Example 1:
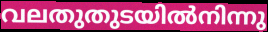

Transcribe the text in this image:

വലതുതുടയിൽനിന്നു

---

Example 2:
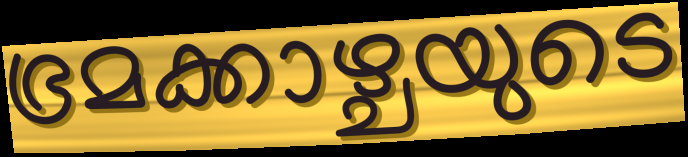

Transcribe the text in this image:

ഭ്രമക്കാഴ്ചയുടെ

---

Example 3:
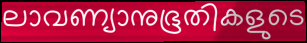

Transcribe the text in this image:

ലാവണ്യാനുഭൂതികളുടെ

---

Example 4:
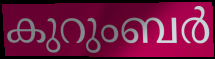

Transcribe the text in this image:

കുറുംബർ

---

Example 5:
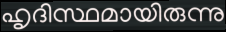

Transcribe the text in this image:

ഹൃദിസ്ഥമായിരുന്നു